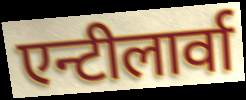
एन्टीलार्वा